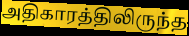
அதிகாரத்திலிருந்த